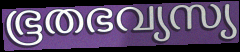
ഭൂതഭവ്യസ്യ